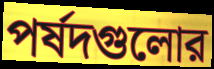
পর্ষদগুলোর